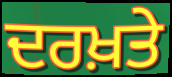
ਦਰਖ਼ਤੇ